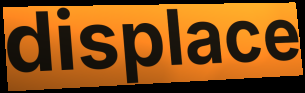
displace